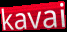
kavai